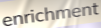
enrichment